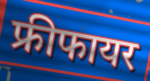
फ्रीफायर